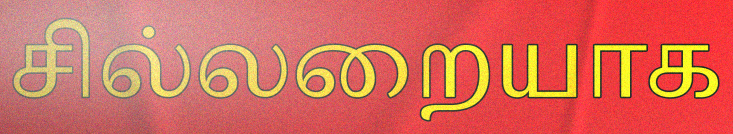
சில்லறையாக